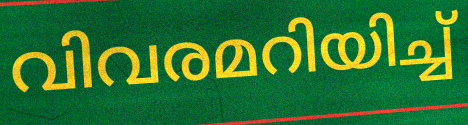
വിവരമറിയിച്ച്